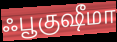
ஃபூகுஷீமா